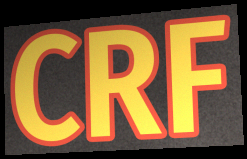
CRF